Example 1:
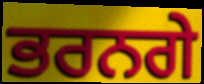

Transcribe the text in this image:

ਭਰਨਗੇ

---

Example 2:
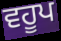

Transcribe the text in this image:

ਵਹੂਪ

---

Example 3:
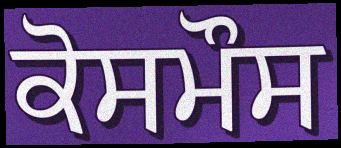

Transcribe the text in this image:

ਕੋਸਮੌਸ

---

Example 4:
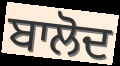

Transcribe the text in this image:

ਬਾਲੋਦ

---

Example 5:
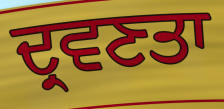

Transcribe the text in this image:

ਦ੍ਰਵਣਤਾ